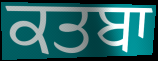
ਕਤਬਾ